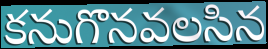
కనుగొనవలసిన